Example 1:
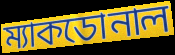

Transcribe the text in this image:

ম্যাকডোনাল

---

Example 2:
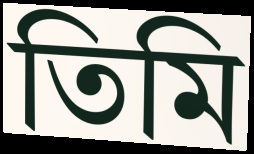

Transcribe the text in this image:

তিমি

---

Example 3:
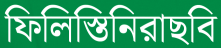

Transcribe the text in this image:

ফিলিস্তিনিরাছবি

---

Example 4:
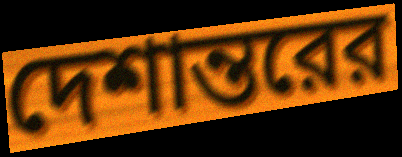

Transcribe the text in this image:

দেশান্তরের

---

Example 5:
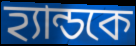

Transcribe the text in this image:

হ্যান্ডকে